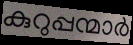
കുറുപ്പന്മാർ